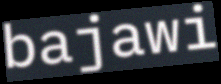
bajawi